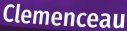
Clemenceau